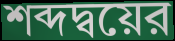
শব্দদ্বয়ের